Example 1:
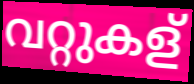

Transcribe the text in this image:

വറ്റുകള്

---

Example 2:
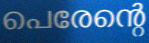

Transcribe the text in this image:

പെരേന്റെ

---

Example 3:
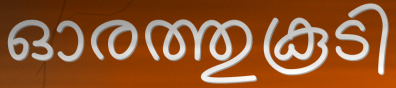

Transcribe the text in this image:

ഓരത്തുകൂടി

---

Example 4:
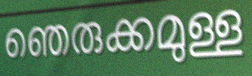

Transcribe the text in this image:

ഞെരുക്കമുള്ള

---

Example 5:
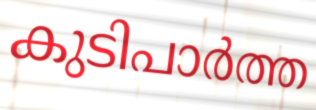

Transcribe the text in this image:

കുടിപാർത്ത